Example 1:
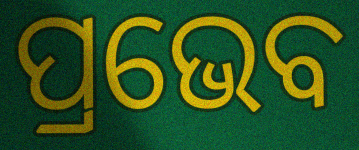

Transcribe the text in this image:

ପ୍ରଭେବ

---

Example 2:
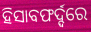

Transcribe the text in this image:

ହିସାବଫର୍ଦ୍ଦରେ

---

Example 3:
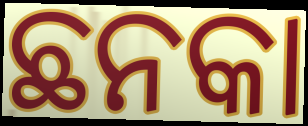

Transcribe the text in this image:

ଛନକା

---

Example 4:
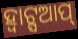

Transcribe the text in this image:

ହ୍ୱାଟ୍ସଆପ୍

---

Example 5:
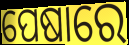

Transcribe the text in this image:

ପେଷାରେ